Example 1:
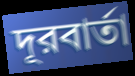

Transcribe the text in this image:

দূরবার্তা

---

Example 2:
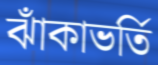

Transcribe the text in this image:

ঝাঁকাভর্তি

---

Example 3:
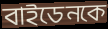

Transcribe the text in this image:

বাইডেনকে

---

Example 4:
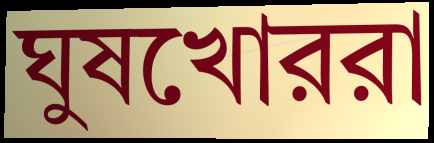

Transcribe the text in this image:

ঘুষখোররা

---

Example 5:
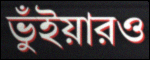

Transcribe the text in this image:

ভুঁইয়ারও